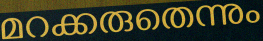
മറക്കരുതെന്നും